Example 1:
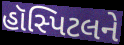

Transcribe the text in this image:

હૉસ્પિટલને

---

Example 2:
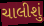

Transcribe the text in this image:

ચાલીશું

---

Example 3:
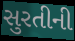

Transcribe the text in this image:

સુરતીની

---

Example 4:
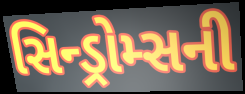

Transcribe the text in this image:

સિન્ડ્રોમ્સની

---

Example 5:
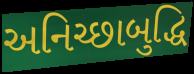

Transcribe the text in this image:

અનિચ્છાબુદ્ધિ